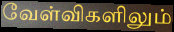
வேள்விகளிலும்